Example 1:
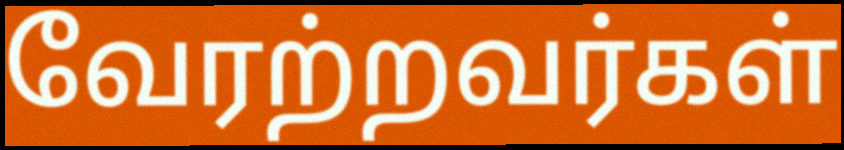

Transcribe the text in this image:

வேரற்றவர்கள்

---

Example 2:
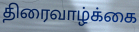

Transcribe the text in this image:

திரைவாழ்க்கை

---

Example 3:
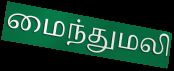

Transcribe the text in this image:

மைந்துமலி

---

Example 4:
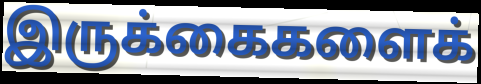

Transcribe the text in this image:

இருக்கைகளைக்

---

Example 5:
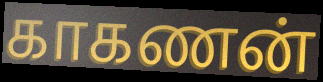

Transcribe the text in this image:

காகணன்